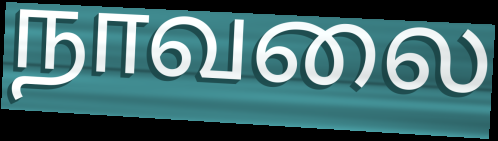
நாவலை